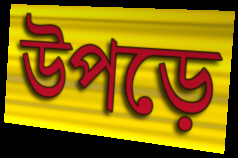
উপড়ে